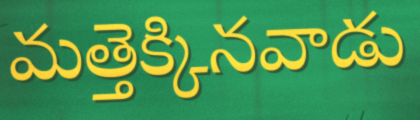
మత్తెక్కినవాడు